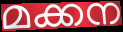
മക്കന